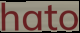
hato